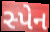
સ્પેન